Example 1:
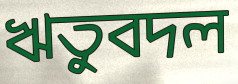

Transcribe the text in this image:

ঋতুবদল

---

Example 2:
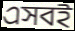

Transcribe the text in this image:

এসবই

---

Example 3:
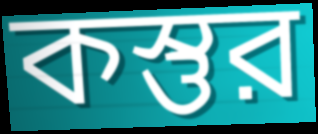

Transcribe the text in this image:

কস্তুর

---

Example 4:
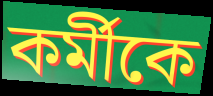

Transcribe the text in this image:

কর্মীকে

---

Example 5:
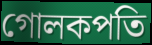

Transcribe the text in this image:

গোলকপতি